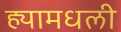
ह्यामधली